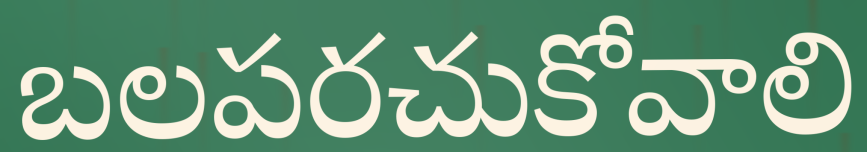
బలపరచుకోవాలి